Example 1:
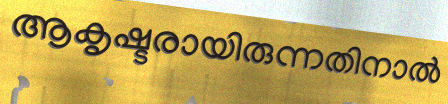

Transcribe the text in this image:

ആകൃഷ്ടരായിരുന്നതിനാൽ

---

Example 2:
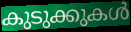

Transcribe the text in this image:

കുടുക്കുകൾ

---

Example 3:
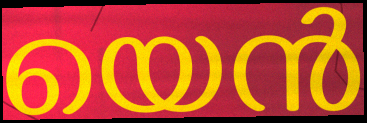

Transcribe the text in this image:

യെൻ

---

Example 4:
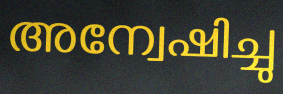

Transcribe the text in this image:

അന്വേഷിച്ചു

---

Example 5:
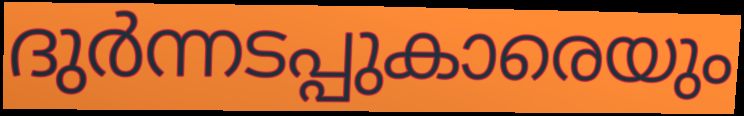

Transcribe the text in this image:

ദുർന്നടപ്പുകാരെയും